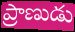
ప్రాణుడు